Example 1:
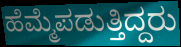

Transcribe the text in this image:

ಹೆಮ್ಮೆಪಡುತ್ತಿದ್ದರು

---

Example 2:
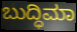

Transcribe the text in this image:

ಬುದ್ಧಿಮಾ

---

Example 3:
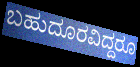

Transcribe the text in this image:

ಬಹುದೂರವಿದ್ದರೂ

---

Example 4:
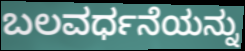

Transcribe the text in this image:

ಬಲವರ್ಧನೆಯನ್ನು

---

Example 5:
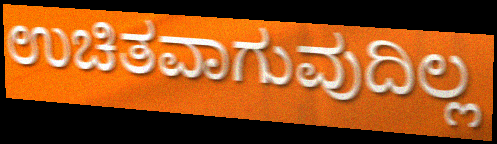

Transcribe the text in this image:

ಉಚಿತವಾಗುವುದಿಲ್ಲ